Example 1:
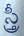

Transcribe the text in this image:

స్త్రీ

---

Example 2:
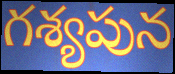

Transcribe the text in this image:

గశ్యపున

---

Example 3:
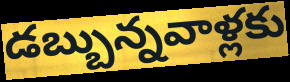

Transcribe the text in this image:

డబ్బున్నవాళ్లకు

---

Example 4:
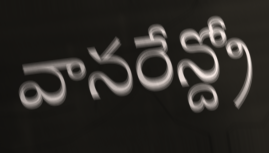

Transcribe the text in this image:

వానరేన్ద్రో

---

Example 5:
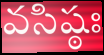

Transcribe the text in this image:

వసిష్ఠః